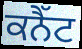
ਕਨੈੱਟ